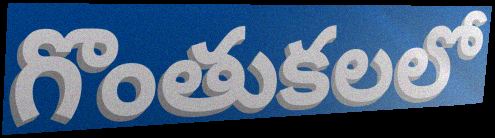
గొంతుకలలో